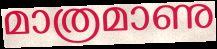
മാത്രമാണു